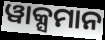
ୱାକ୍ସମାନ